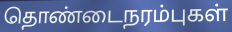
தொண்டைநரம்புகள்